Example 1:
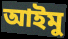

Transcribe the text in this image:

আইমু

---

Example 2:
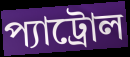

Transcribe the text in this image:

প্যাট্রোল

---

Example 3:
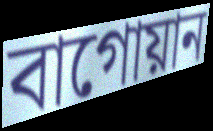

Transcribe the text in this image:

বাগোয়ান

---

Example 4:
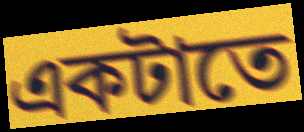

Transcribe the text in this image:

একটাতে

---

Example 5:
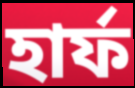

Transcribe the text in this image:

হার্ফ